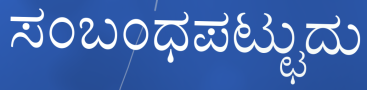
ಸಂಬಂಧಪಟ್ಟುದು